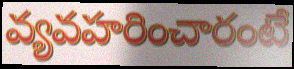
వ్యవహరించారంటే